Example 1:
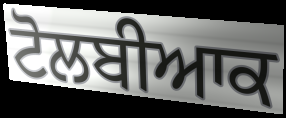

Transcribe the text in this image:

ਟੋਲਬੀਆਕ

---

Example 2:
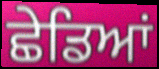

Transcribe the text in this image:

ਛੇਡਿਆਂ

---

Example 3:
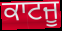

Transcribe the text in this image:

ਕਾਟਜੂ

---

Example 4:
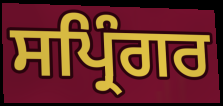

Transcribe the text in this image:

ਸਪ੍ਰਿੰਗਰ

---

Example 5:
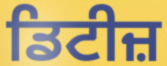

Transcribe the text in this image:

ਡਿਟੀਜ਼